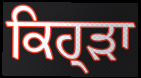
ਕਿਹ੍ੜਾ